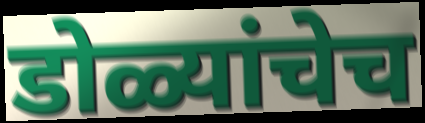
डोळ्यांचेच